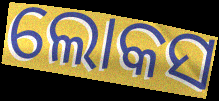
ଲୋକସ